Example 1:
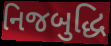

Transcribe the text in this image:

નિજબુદ્ધિ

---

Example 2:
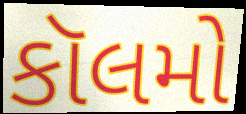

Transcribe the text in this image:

કૉલમો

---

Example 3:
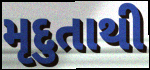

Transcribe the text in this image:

મૃદુતાથી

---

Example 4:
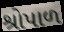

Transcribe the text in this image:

શ્રોપાળ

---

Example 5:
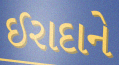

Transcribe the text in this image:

ઈરાદાને